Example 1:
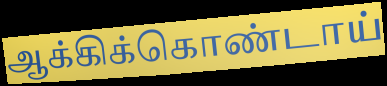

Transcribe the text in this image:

ஆக்கிக்கொண்டாய்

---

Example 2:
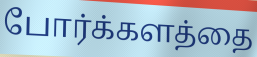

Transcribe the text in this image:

போர்க்களத்தை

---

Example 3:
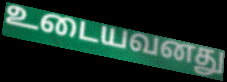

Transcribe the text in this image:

உடையவனது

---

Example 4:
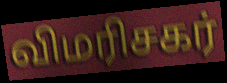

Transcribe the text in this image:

விமரிசகர்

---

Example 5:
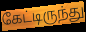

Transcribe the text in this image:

கேட்டிருந்து